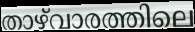
താഴ്‌വാരത്തിലെ